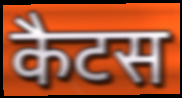
कैटस